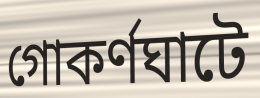
গোকর্ণঘাটে